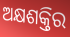
ଅକ୍ଷଶକ୍ତିର